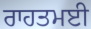
ਰਾਹਤਮਈ